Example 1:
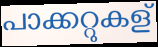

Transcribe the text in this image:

പാക്കറ്റുകള്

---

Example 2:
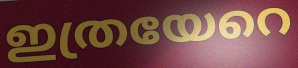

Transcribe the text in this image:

ഇത്രയേറെ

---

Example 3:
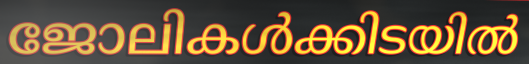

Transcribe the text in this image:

ജോലികൾക്കിടയിൽ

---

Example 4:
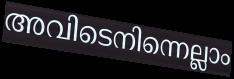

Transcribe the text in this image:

അവിടെനിന്നെല്ലാം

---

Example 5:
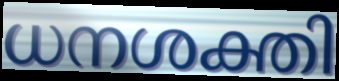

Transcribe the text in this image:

ധനശക്തി